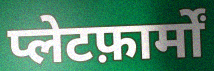
प्लेटफ़ार्मों